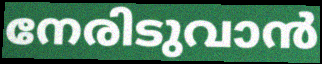
നേരിടുവാൻ